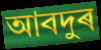
আবদুৰ